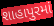
શાહાપુરમાં